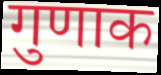
गुणाक